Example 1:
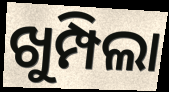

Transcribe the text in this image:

ଖୁମ୍ପିଲା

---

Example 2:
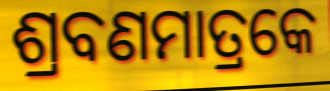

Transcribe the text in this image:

ଶ୍ରବଣମାତ୍ରକେ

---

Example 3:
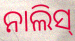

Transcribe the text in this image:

ନାଲିସ୍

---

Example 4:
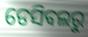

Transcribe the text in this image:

ଡେସିବଲରୁ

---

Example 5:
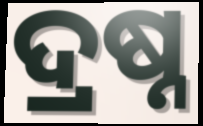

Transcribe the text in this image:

ଦ୍ରଷ୍ନ